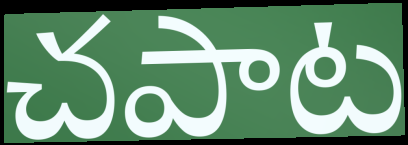
చపాట